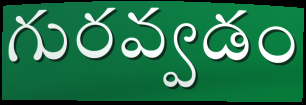
గురవ్వడం